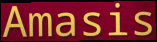
Amasis